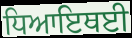
ਧਿਆਇਥਈ